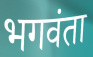
भगवंता